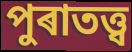
পুৰাতত্ত্ব